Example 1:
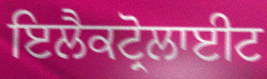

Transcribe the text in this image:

ਇਲੈਕਟ੍ਰੋਲਾਈਟ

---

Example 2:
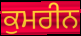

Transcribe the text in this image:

ਕੁਮਰੀਨ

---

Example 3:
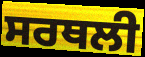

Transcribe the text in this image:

ਸਰਥਲੀ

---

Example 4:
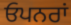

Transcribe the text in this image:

ਓਪਨਰਾਂ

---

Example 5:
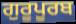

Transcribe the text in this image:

ਗੁਰੂਪੂਰਬ